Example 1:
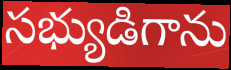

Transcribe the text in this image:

సభ్యుడిగాను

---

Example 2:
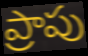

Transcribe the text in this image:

ప్రాపు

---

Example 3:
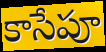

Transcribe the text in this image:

కాసేపూ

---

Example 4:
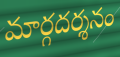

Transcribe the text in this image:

మార్గదర్శనం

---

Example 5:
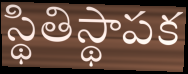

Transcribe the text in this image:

స్థితిస్థాపక